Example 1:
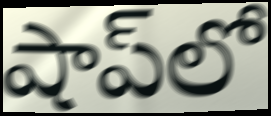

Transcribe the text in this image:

షాప్‌లో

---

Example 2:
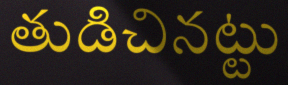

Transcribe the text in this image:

తుడిచినట్టు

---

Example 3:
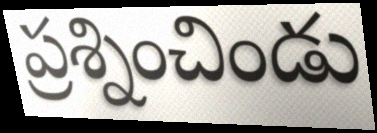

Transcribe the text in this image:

ప్రశ్నించిండు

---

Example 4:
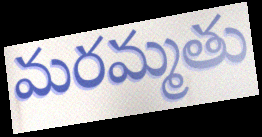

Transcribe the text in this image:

మరమ్మతు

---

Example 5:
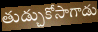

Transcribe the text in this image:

తుడ్చుకోసాగాడు